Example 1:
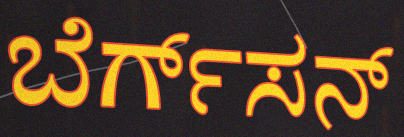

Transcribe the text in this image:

ಬೆರ್ಗ್‌ಸನ್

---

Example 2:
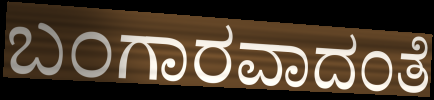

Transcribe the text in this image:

ಬಂಗಾರವಾದಂತೆ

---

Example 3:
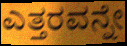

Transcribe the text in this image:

ಎತ್ತರವನ್ನೇ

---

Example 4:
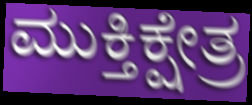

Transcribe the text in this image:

ಮುಕ್ತಿಕ್ಷೇತ್ರ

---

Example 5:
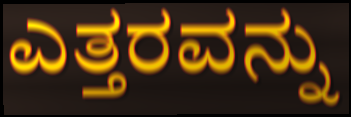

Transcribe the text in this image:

ಎತ್ತರವನ್ನು